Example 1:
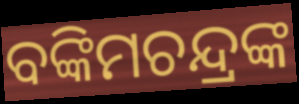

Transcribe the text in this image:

ବଙ୍କିମଚନ୍ଦ୍ରଙ୍କ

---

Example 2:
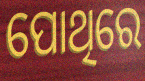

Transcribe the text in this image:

ପୋଥିରେ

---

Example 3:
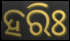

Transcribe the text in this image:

ହରିଃ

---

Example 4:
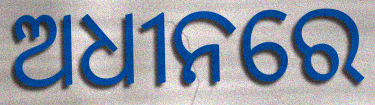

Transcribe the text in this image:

ଅଧୀନରେ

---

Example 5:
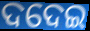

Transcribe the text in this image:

ଦଦେଇ